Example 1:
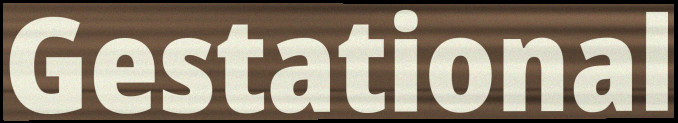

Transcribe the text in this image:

Gestational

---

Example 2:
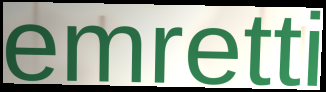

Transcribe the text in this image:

emretti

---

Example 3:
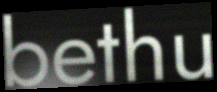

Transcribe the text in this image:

bethu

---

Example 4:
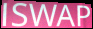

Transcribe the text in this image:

ISWAP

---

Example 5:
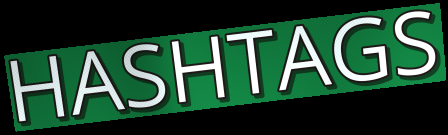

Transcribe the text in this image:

HASHTAGS